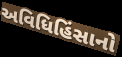
અવિધિહિંસાનો